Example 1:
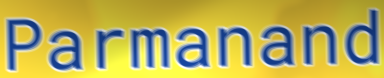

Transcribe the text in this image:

Parmanand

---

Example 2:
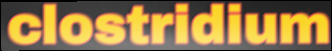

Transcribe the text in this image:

clostridium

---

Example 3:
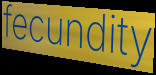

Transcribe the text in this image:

fecundity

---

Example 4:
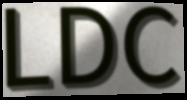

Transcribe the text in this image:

LDC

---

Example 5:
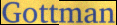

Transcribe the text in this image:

Gottman